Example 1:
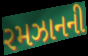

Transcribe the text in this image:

રમઝાનની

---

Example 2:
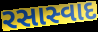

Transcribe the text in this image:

રસાસ્વાદ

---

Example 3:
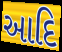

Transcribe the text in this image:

આદિ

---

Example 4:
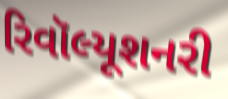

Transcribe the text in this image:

રિવૉલ્યૂશનરી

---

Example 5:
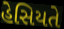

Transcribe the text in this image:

હેસિયતે